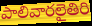
పాలివారలైతిరి